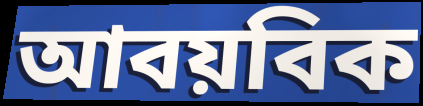
আবয়বিক